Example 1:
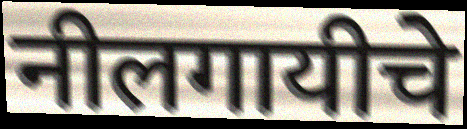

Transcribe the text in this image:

नीलगायीचे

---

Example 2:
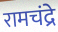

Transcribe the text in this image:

रामचंद्रे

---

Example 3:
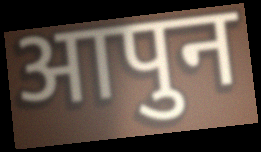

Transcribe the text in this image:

आपुन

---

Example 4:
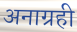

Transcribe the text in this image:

अनाग्रही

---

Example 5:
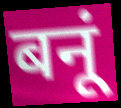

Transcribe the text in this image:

बनूं